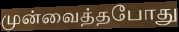
முன்வைத்தபோது